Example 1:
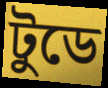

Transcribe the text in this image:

টুডে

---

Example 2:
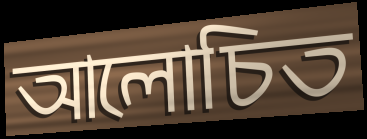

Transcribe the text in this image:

আলোচিত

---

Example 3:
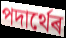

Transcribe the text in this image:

পদাৰ্থেৰ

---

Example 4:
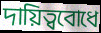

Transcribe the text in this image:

দায়িত্ববোধে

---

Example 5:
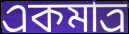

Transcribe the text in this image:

একমাত্ৰ